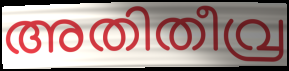
അതിതീവ്ര